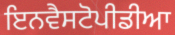
ਇਨਵੈਸਟੋਪੀਡੀਆ